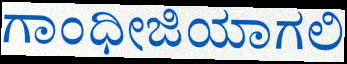
ಗಾಂಧೀಜಿಯಾಗಲಿ